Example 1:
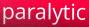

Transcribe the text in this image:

paralytic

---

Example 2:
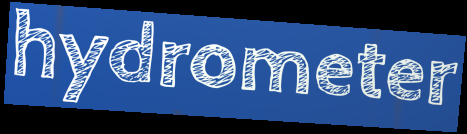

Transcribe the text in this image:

hydrometer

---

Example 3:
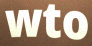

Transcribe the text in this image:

wto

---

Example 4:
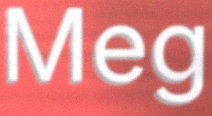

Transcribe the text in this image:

Meg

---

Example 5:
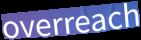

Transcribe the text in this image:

overreach